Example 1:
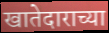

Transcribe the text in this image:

खातेदाराच्या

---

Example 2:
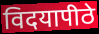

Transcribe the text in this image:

विदयापीठे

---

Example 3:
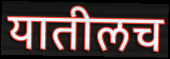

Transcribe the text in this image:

यातीलच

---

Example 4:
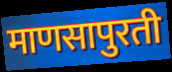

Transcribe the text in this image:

माणसापुरती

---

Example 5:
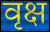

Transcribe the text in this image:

वृक्ष